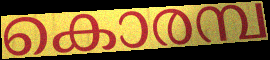
കൊരമ്പ